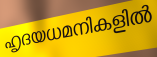
ഹൃദയധമനികളിൽ